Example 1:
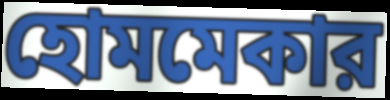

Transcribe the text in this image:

হোমমেকার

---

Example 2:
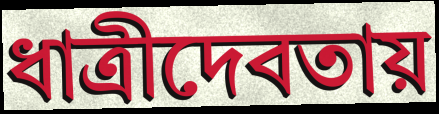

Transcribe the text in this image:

ধাত্রীদেবতায়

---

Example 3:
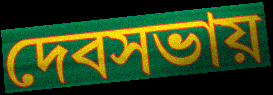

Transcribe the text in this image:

দেবসভায়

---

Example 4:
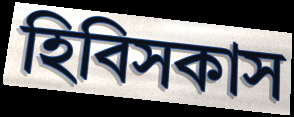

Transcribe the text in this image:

হিবিসকাস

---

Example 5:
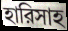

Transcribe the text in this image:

হারিসাহ